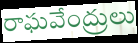
రాఘవేంద్రులు